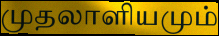
முதலாளியமும்